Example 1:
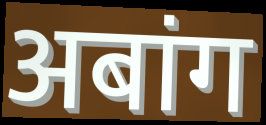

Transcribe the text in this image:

अबांग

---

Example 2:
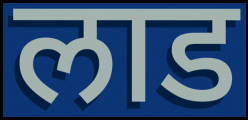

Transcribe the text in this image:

लाड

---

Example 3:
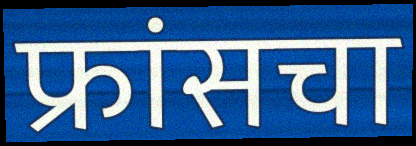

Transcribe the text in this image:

फ्रांसचा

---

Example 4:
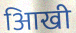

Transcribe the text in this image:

आिखी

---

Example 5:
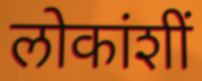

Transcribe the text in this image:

लोकांशीं